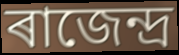
ৰাজেন্দ্ৰ